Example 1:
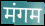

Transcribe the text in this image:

मंगम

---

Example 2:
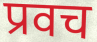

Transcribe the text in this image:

प्रवच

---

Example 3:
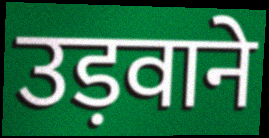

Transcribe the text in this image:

उड़वाने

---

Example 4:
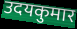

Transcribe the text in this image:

उदयकुमार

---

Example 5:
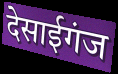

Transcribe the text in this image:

देसाईगंज